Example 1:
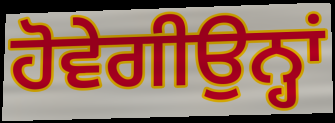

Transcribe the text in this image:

ਹੋਵੇਗੀਉਨ੍ਹਾਂ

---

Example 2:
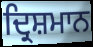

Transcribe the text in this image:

ਦ੍ਰਿਸ਼ਮਾਨ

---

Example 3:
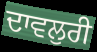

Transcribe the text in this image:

ਦਾਵਲੁਰੀ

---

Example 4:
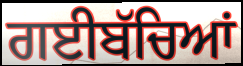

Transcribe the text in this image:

ਗਈਬੱਚਿਆਂ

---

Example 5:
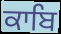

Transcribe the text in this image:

ਕਾਬਿ